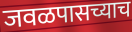
जवळपासच्याच